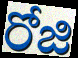
రోజి